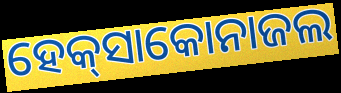
ହେକ୍‌ସାକୋନାଜଲ